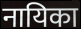
नायिका